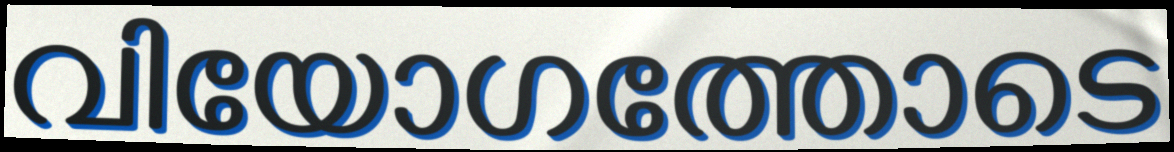
വിയോഗത്തോടെ